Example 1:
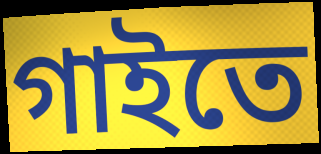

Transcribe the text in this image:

গাইতে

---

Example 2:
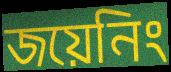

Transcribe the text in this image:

জয়েনিং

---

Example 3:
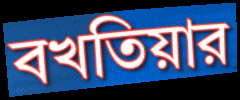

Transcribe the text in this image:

বখতিয়ার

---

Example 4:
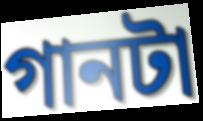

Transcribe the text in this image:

গানটা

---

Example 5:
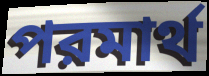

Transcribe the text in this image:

পরমার্থ